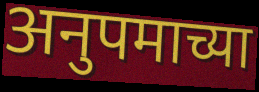
अनुपमाच्या